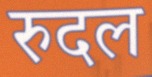
रुदल